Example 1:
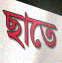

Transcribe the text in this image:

ছাতে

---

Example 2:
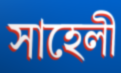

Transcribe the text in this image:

সাহেলী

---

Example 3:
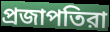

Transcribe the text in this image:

প্রজাপতিরা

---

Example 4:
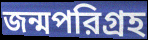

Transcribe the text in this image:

জন্মপরিগ্রহ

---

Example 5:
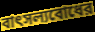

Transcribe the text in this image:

বাৎসল্যবোধের